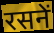
रसनें